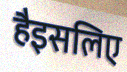
हैइसलिए